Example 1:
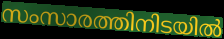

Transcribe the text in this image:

സംസാരത്തിനിടയിൽ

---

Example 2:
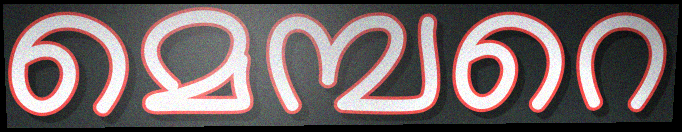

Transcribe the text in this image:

മെമ്പറെ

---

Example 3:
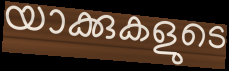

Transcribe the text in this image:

യാക്കുകളുടെ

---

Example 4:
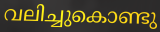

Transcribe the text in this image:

വലിച്ചുകൊണ്ടു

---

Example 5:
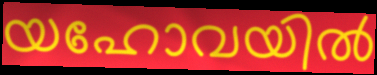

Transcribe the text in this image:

യഹോവയിൽ